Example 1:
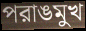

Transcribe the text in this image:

পরাঙমুখ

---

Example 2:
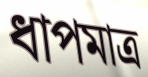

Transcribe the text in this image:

ধাপমাত্র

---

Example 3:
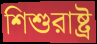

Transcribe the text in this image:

শিশুরাষ্ট্র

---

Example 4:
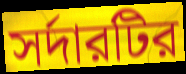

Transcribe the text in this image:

সর্দারটির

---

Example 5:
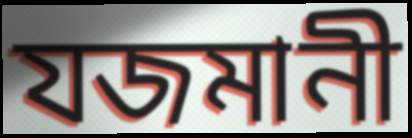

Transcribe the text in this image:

যজমানী